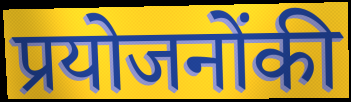
प्रयोजनोंकी